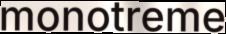
monotreme